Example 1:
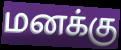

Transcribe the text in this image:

மனக்கு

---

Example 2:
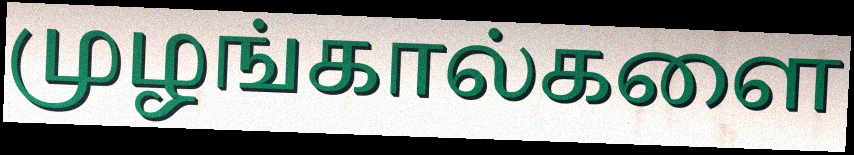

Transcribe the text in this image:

முழங்கால்களை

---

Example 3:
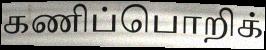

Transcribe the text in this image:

கணிப்பொறிக்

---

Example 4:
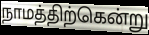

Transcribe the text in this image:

நாமத்திற்கென்று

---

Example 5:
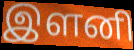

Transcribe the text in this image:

இளனி